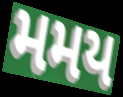
મમય